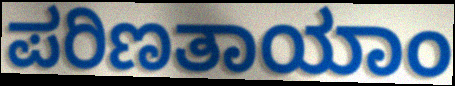
ಪರಿಣತಾಯಾಂ